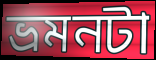
ভ্রমনটা